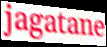
jagatane